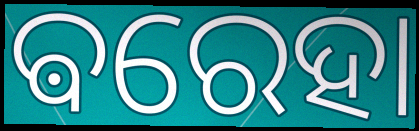
ଵରେହା